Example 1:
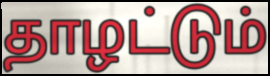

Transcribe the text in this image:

தாழட்டும்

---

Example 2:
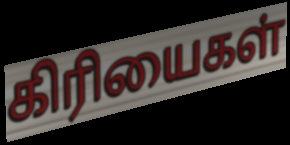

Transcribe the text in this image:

கிரியைகள்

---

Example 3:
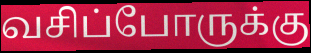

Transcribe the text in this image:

வசிப்போருக்கு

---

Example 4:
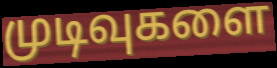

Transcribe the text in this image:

முடிவுகளை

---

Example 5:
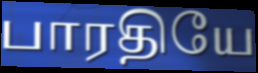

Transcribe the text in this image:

பாரதியே